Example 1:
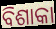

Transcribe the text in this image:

ବିଶାକା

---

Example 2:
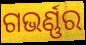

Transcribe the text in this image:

ଗଭର୍ଣ୍ଣର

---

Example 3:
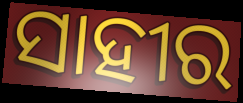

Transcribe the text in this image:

ସାହୀର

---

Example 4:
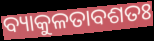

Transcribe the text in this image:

ବ୍ୟାକୁଳତାବଶତଃ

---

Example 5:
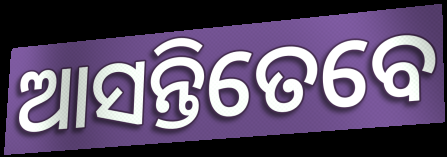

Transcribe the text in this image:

ଆସନ୍ତିତେବେ